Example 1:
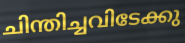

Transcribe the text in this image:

ചിന്തിച്ചവിടേക്കു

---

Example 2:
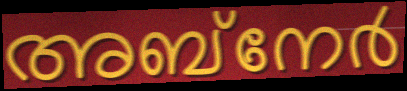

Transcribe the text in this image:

അബ്നേർ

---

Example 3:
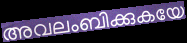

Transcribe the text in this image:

അവലംബിക്കുകയേ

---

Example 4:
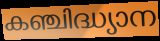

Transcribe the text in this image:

കഞ്ചിദ്ധ്യാന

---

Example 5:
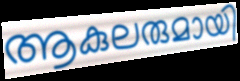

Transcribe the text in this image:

ആകുലരുമായി